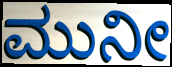
ಮುನೀ